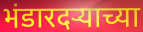
भंडारदर्‍याच्या